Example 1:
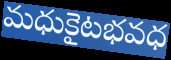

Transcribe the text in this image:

మధుకైటభవధ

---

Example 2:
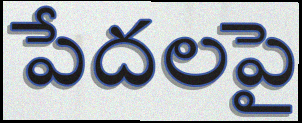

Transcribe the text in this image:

పేదలపై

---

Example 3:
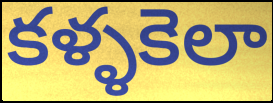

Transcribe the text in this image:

కళ్ళకెలా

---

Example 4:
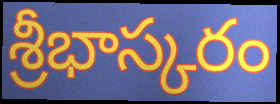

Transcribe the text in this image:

శ్రీభాస్కరం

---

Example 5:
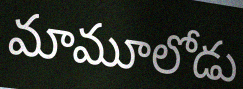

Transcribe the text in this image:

మామూలోడు